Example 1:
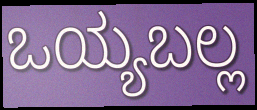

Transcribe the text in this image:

ಒಯ್ಯಬಲ್ಲ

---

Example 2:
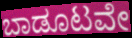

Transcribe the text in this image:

ಬಾಡೂಟವೇ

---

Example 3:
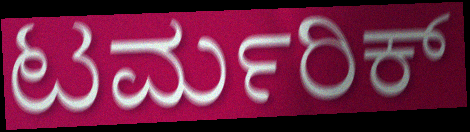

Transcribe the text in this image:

ಟರ್ಮರಿಕ್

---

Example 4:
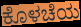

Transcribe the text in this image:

ಕೊಳಚೆಯ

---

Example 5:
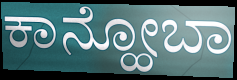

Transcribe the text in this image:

ಕಾನ್ಹೋಬಾ